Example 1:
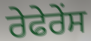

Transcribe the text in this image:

ਰੇਫੇਰੇਂਸ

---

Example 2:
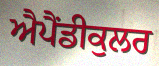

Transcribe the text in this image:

ਐਪੈਂਡੀਕੁਲਰ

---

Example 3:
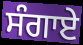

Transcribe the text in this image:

ਸੰਗਾਏ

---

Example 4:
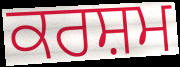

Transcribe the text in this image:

ਕਰਸ਼ਮ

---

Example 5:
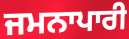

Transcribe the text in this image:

ਜਮਨਾਪਾਰੀ